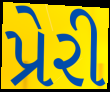
પ્રેરી